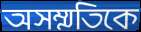
অসম্মতিকে